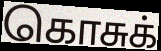
கொசுக்